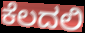
ಕೆಲದಲಿ